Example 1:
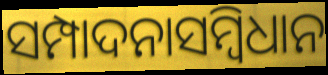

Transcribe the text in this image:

ସମ୍ପାଦନାସମ୍ବିଧାନ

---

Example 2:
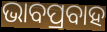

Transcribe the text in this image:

ଭାବପ୍ରବାହ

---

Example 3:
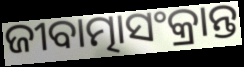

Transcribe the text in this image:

ଜୀବାତ୍ମାସଂକ୍ରାନ୍ତ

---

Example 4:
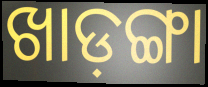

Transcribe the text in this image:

ଖାଡ଼ଙ୍ଗା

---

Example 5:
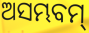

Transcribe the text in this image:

ଅସମ୍ଭବମ୍